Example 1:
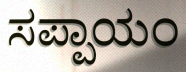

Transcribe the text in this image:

ಸಪ್ಪಾಯಂ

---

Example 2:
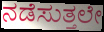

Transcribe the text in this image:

ನಡೆಸುತ್ತಲೇ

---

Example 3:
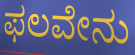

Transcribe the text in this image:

ಫಲವೇನು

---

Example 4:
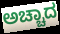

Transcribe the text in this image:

ಅಚ್ಚಾದ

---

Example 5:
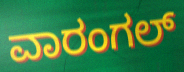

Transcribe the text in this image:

ವಾರಂಗಲ್